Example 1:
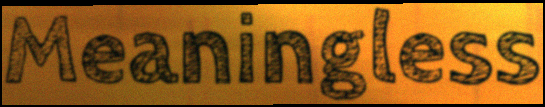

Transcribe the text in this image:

Meaningless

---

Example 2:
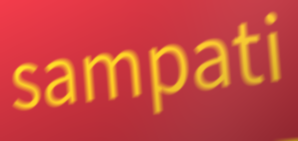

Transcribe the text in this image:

sampati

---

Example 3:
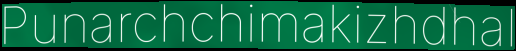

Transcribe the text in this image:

Punarchchimakizhdhal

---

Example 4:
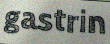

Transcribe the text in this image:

gastrin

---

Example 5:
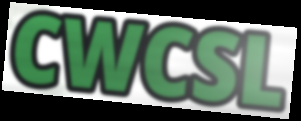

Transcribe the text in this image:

CWCSL